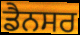
ਡੈਨਸਰ